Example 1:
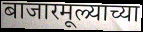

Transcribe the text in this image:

बाजारमूल्याच्या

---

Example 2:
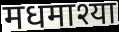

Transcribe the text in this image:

मधमाश्या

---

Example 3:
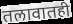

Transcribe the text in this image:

तलावातही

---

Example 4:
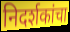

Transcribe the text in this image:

निदर्शकांचा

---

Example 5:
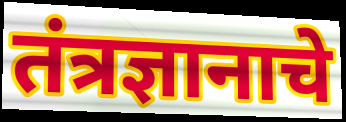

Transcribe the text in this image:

तंत्रज्ञानाचे